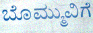
ಬೊಮ್ಮುವಿಗೆ